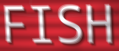
FISH